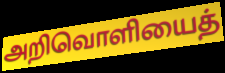
அறிவொளியைத்